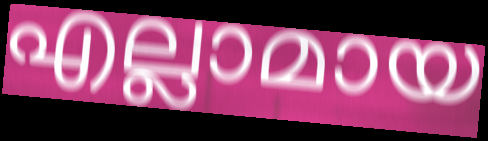
എല്ലാമായ